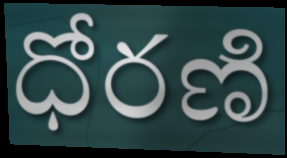
ధోరణి